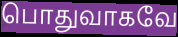
பொதுவாகவே